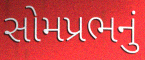
સોમપ્રભનું